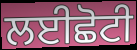
ਲਈਛੋਟੀ